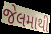
જેલમાથી